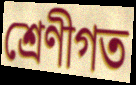
শ্রেণীগত